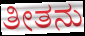
ತೀತನು